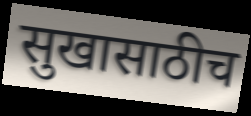
सुखासाठीच